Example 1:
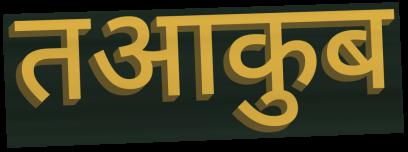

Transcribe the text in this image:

तआकुब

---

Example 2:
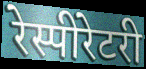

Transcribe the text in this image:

रेस्पीरेटरी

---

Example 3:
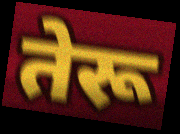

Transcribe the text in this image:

तेरू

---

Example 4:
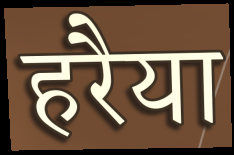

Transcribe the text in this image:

हरैया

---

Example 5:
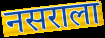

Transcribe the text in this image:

नसराला